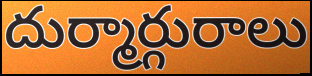
దుర్మార్గురాలు